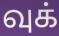
வுக்